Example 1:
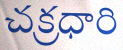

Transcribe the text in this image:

చక్రధారి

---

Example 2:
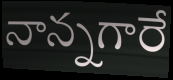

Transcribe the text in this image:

నాన్నగారే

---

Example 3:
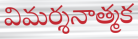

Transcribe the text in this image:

విమర్శనాత్మక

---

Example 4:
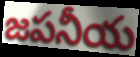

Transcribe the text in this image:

జపనీయ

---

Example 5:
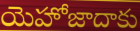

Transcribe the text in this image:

యెహోజాదాకు